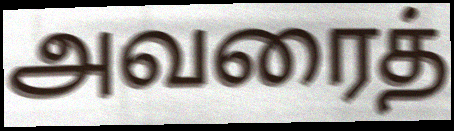
அவரைத்